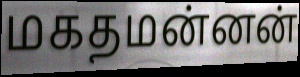
மகதமன்னன்